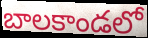
బాలకాండలో